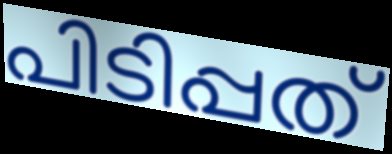
പിടിപ്പത്